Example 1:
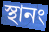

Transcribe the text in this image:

স্থানং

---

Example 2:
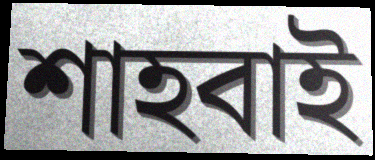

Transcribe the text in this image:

শাহবাই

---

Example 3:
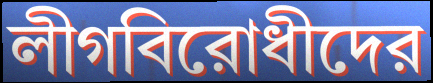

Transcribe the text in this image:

লীগবিরোধীদের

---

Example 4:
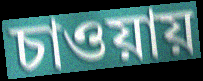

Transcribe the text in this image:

চাওয়ায়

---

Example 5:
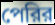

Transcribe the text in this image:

পেরির